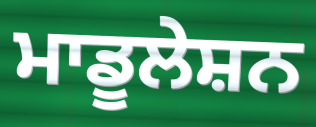
ਮਾਡੂਲੇਸ਼ਨ